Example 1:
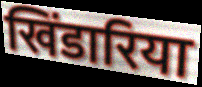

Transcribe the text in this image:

खिंडारिया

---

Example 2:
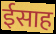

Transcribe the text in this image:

ईसाह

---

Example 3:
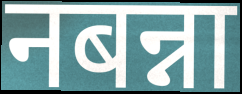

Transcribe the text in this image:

नबन्ना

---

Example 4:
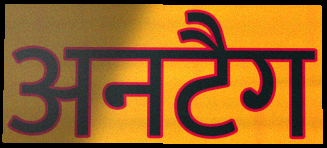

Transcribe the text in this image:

अनटैग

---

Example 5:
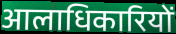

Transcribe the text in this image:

आलाधिकारियों